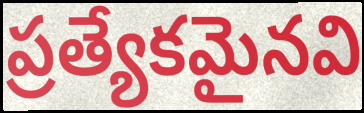
ప్రత్యేకమైనవి